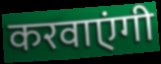
करवाएंगी